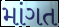
માંગત